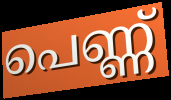
പെണ്ണ്